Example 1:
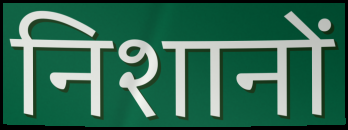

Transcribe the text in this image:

निशानों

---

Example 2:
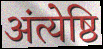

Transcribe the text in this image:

अंत्येष्ठि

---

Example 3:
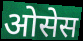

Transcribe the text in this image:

ओसेस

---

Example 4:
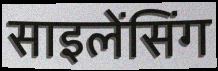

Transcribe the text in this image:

साइलेंसिंग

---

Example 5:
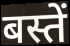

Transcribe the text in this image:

बस्तें